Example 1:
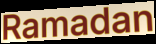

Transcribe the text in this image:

Ramadan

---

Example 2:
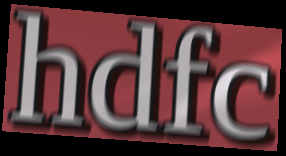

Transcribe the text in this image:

hdfc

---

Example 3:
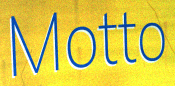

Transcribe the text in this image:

Motto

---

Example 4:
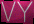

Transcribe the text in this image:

VY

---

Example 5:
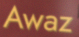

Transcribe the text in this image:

Awaz